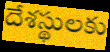
దేశస్థులకు